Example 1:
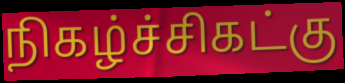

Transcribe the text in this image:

நிகழ்ச்சிகட்கு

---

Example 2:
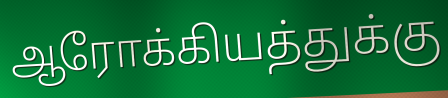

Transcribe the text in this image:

ஆரோக்கியத்துக்கு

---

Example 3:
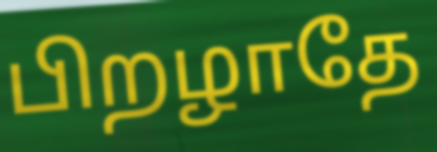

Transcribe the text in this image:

பிறழாதே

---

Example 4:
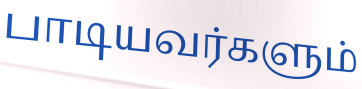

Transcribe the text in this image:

பாடியவர்களும்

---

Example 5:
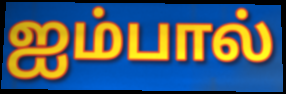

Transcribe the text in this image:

ஐம்பால்